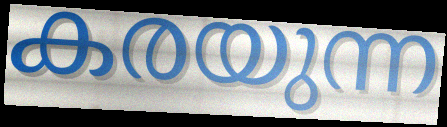
കരയുന്ന